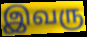
இவரு